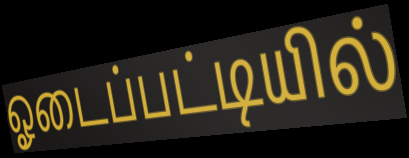
ஓடைப்பட்டியில்